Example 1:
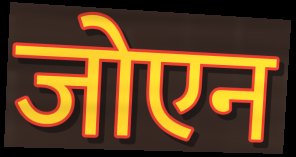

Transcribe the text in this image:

जोएन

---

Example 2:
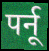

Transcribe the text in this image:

पर्नू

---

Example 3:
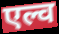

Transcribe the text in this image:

एल्व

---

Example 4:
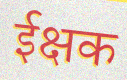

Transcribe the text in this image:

ईक्षक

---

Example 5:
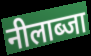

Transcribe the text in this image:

नीलाब्जा